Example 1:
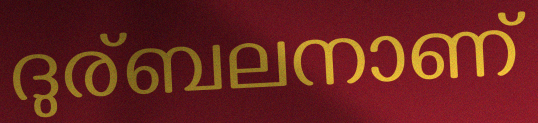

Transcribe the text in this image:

ദുര്ബലനാണ്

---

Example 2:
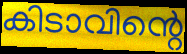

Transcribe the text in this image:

കിടാവിന്റെ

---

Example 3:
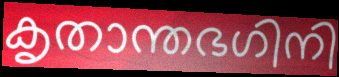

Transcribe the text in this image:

കൃതാന്തഭഗിനി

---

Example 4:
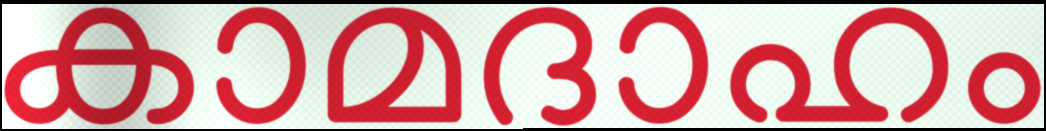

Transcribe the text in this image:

കാമദാഹം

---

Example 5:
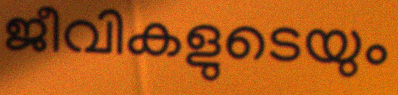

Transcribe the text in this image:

ജീവികളുടെയും